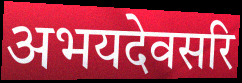
अभयदेवसरि